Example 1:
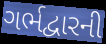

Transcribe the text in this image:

ગર્ભદ્વારની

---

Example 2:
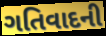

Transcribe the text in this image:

ગતિવાદની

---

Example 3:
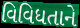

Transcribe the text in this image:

વિવિધતાને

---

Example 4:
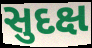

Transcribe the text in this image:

સુદક્ષ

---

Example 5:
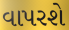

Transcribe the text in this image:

વાપરશે